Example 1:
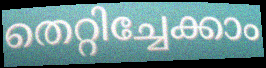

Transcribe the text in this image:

തെറ്റിച്ചേക്കാം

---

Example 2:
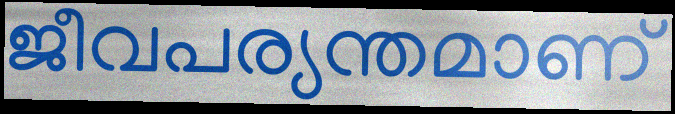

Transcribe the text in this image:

ജീവപര്യന്തമാണ്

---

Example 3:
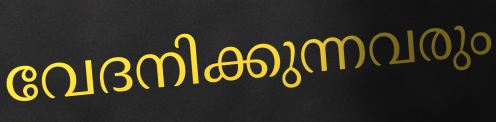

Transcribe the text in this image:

വേദനിക്കുന്നവരും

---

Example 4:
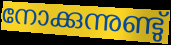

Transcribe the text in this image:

നോക്കുന്നുണ്ടു്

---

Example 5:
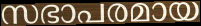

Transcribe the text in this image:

സഭാപരമായ